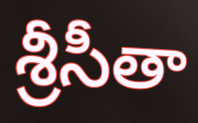
శ్రీసీతా